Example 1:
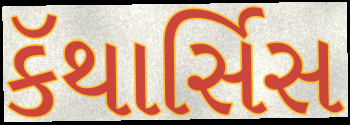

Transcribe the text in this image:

કૅથાર્સિસ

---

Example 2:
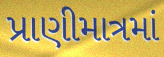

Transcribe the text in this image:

પ્રાણીમાત્રમાં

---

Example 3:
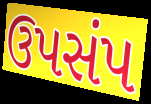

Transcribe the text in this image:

ઉપસંપ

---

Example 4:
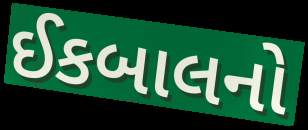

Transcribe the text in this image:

ઈકબાલનો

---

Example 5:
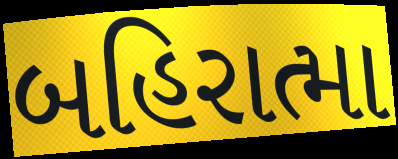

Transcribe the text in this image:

બહિરાત્મા